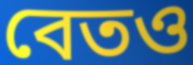
বেতও